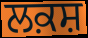
ਲਕ਼ਸ਼